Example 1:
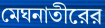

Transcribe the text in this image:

মেঘনাতীরের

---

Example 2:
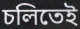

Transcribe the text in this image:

চলিতেই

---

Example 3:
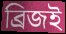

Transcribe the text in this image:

ব্রিজই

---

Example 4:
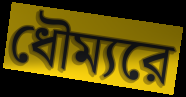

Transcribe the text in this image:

ধৌম্যরে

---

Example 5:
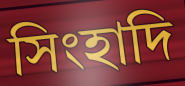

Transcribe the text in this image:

সিংহাদি